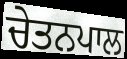
ਚੇਤਨਪਾਲ